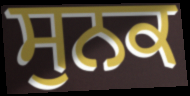
ਸੁਨਕ